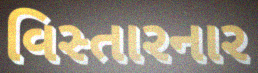
વિસ્તારનાર